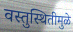
वस्तुस्थितीमुळे